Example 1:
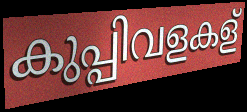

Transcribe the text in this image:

കുപ്പിവളകള്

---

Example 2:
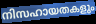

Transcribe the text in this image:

നിസഹായതകളും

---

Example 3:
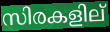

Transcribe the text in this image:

സിരകളില്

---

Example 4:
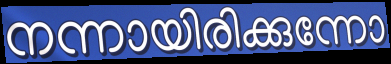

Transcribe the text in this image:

നന്നായിരിക്കുന്നോ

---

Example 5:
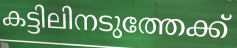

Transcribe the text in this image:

കട്ടിലിനടുത്തേക്ക്